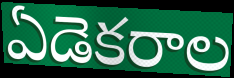
ఏడెకరాల